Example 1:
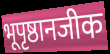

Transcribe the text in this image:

भूपृष्ठानजीक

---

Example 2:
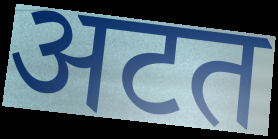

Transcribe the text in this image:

अटत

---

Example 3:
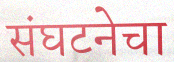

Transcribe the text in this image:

संघटनेचा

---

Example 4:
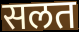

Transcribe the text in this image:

सलत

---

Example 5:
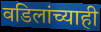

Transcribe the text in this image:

वडिलांच्याही